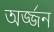
অর্জ্জন